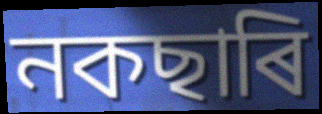
নকছাৰি